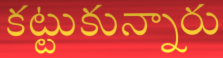
కట్టుకున్నారు